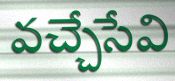
వచ్చేసేవి